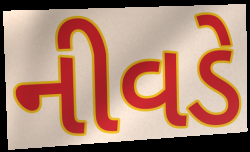
નીવડે